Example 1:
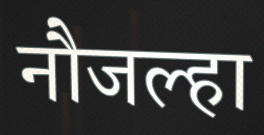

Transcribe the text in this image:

नौजल्हा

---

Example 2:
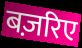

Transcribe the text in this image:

बज़रिए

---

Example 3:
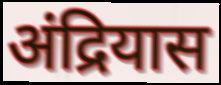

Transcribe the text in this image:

अंद्रियास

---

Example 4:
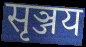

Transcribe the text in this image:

सृञ्जय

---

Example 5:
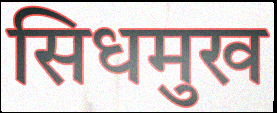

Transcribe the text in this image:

सिधमुख